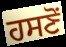
ਹਸਣੋਂ